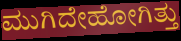
ಮುಗಿದೇಹೋಗಿತ್ತು